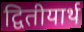
द्वितीयार्थ